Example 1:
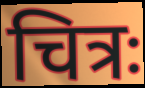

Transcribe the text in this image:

चित्रः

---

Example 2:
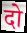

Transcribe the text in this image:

दो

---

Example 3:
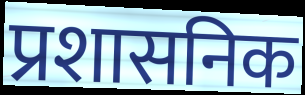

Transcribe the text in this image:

प्रशासनिक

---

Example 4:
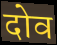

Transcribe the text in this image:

दोव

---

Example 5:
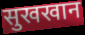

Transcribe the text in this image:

सुखखान